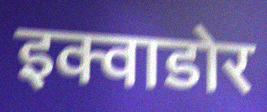
इक्वाडोर